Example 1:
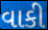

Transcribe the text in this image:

વાકી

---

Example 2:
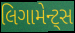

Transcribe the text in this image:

લિગામેન્ટ્સ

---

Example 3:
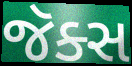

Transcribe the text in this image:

જૅક્સ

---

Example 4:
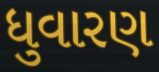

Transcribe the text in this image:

ધુવારણ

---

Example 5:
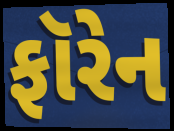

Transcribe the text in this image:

ફૉરેન